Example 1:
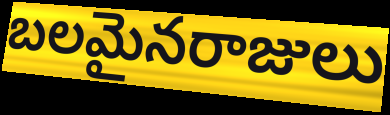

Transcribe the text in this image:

బలమైనరాజులు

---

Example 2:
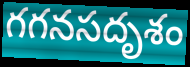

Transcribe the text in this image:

గగనసదృశం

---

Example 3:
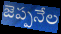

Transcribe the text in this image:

జెప్పనేల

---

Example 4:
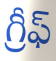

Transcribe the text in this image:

గ్రీఫ్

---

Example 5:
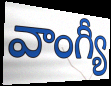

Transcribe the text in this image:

వాంగ్యీ